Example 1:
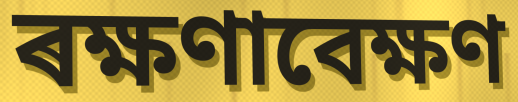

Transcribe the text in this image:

ৰক্ষণাবেক্ষণ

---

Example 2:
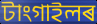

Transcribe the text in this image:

টাংগাইলৰ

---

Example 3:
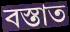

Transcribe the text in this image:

বস্তাত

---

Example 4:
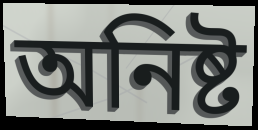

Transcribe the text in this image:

অনিষ্ট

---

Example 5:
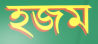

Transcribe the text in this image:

হজম